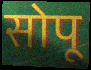
सोपू